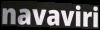
navaviri